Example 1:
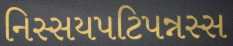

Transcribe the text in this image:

નિસ્સયપટિપન્નસ્સ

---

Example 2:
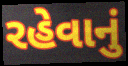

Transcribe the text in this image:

રહેવાનું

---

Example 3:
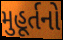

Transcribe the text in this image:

મુહૂર્તનો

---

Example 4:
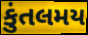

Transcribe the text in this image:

કુંતલમય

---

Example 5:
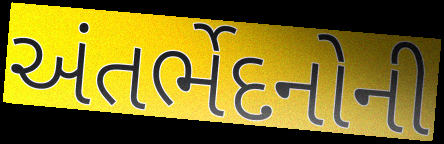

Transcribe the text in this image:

અંતર્ભેદનોની